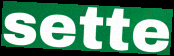
sette